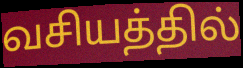
வசியத்தில்